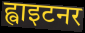
ह्वाइटनर